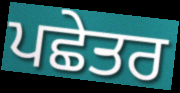
ਪਛੇਤਰ